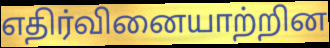
எதிர்வினையாற்றின